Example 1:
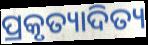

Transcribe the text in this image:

ପ୍ରକୃତ୍ୟାଦିତ୍ୟ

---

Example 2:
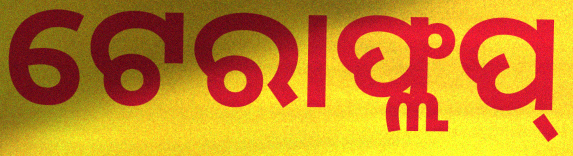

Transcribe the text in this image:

ଟେରାଫ୍ଲପ୍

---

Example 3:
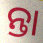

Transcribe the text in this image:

ନ୍ତା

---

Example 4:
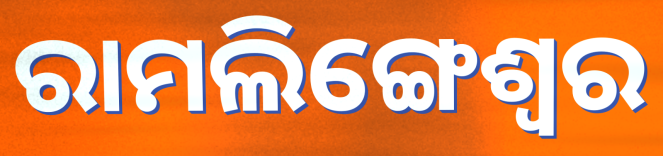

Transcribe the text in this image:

ରାମଲିଙ୍ଗେଶ୍ୱର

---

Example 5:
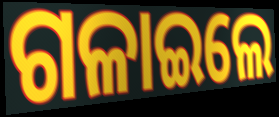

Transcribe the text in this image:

ଗଳାଇଲେ